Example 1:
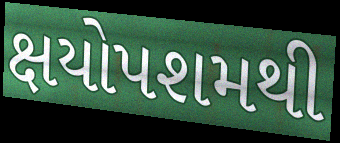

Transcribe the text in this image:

ક્ષયોપશમથી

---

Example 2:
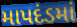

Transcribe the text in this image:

માપદંડમાં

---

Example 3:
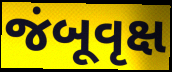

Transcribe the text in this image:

જંબૂવૃક્ષ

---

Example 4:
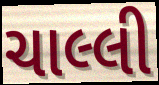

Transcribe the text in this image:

ચાલ્લી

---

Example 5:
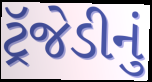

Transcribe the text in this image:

ટ્રૅજેડીનું